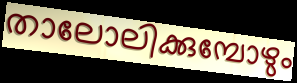
താലോലിക്കുമ്പോഴും